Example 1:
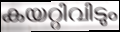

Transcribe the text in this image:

കയറ്റിവിടും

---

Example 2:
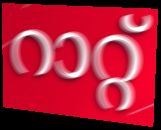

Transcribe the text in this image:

റാറ്റ്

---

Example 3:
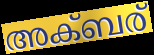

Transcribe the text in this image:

അക്ബര്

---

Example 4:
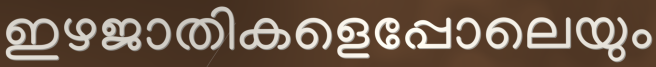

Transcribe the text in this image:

ഇഴജാതികളെപ്പോലെയും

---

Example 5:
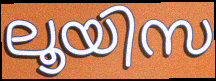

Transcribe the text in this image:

ലൂയിസ